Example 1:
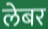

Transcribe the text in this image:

लेबर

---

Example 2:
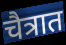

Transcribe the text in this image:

चैत्रात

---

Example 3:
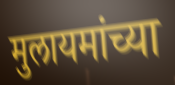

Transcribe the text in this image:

मुलायमांच्या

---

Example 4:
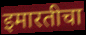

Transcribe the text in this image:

इमारतीचा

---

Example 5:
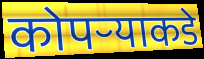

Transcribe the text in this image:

कोपऱ्याकडे